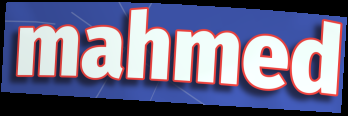
mahmed